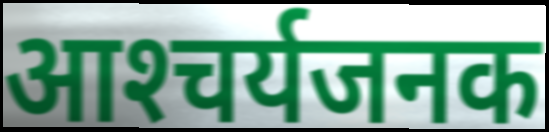
आश्‍चर्यजनक